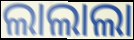
ଲାଲାଲା